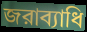
জরাব্যাধি